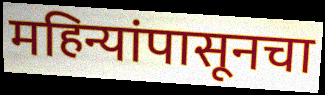
महिन्यांपासूनचा